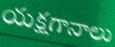
యక్షగానాలు